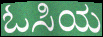
ಓಸಿಯ